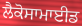
ਲੈਕੋਸਾਮਾਈਡ